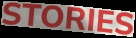
STORIES